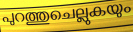
പുറത്തുചെല്ലുകയും